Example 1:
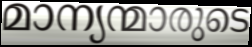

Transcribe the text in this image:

മാന്യന്മാരുടെ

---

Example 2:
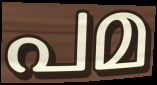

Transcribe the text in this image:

പമ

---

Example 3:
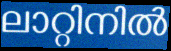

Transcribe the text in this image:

ലാറ്റിനിൽ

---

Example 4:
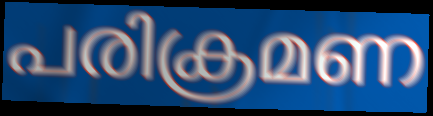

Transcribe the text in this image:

പരിക്രമണ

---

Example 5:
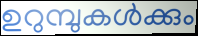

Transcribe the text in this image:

ഉറുമ്പുകൾക്കും